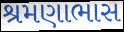
શ્રમણાભાસ